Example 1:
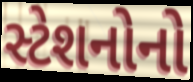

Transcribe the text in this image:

સ્ટેશનોનો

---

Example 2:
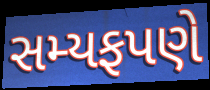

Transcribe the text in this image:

સમ્યફપણે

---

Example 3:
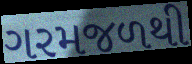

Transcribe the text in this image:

ગરમજળથી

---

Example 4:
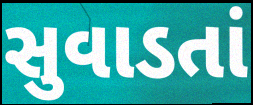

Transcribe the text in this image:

સુવાડતાં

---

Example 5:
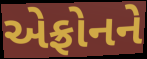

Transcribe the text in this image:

એફ્રોનને